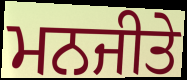
ਮਨਜੀਤੇ